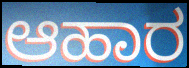
ಆಹಾರ